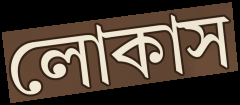
লোকাস